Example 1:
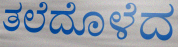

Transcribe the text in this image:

ತಲೆದೊಳೆದ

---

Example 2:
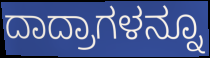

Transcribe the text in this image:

ದಾದ್ರಾಗಳನ್ನೂ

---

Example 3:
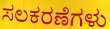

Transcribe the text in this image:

ಸಲಕರಣೆಗಳು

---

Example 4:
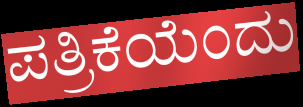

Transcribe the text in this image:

ಪತ್ರಿಕೆಯೆಂದು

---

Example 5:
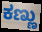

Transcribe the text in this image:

ಕಣ್ಣು